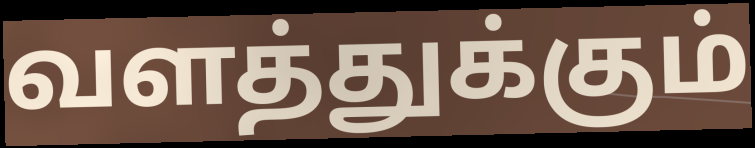
வளத்துக்கும்